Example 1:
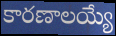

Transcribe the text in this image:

కారణాలయ్యే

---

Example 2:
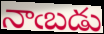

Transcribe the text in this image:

నాఁబడు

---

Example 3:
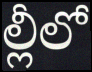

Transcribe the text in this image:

ల్లీలో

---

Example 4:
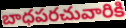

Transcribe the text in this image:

బాధపరచువారికి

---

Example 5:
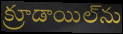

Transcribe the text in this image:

క్రూడాయిల్‌ను